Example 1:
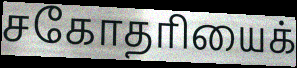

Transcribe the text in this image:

சகோதரியைக்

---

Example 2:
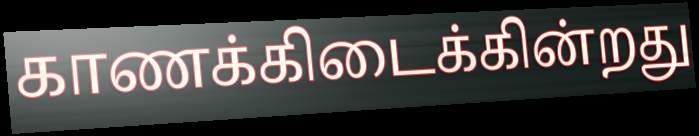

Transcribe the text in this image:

காணக்கிடைக்கின்றது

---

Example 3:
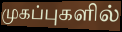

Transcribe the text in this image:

முகப்புகளில்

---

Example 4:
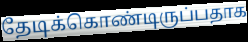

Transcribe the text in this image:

தேடிக்கொண்டிருப்பதாக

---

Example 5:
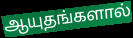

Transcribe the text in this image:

ஆயுதங்களால்